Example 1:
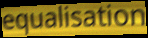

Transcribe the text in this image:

equalisation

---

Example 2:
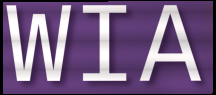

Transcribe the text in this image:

WIA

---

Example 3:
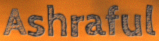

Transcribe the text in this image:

Ashraful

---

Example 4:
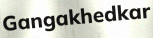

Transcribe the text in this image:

Gangakhedkar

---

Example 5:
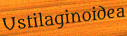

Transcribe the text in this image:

Ustilaginoidea